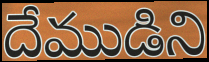
దేముడిని